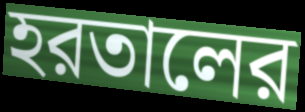
হরতালের